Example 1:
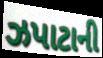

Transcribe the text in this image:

ઝપાટાની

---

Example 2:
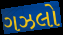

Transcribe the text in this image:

ગઝલો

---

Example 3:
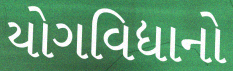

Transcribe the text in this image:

યોગવિદ્યાનો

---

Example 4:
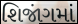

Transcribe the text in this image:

શિજાંગમાં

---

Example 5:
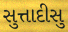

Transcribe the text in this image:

સુત્તાદીસુ